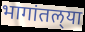
भागांतल्या